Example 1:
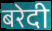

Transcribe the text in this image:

बरेदी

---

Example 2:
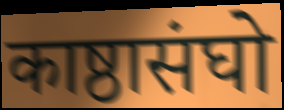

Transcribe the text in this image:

काष्ठासंघो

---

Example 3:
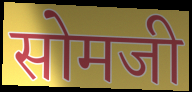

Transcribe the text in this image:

सोमजी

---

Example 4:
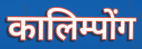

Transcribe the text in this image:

कालिम्पोंग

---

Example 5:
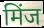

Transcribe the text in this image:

मिंज